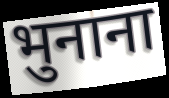
भुनाना